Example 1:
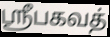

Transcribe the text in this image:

ஸ்ரீபகவத்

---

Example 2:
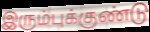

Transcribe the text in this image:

இரும்புக்குண்டு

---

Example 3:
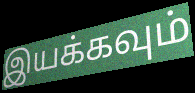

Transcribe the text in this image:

இயக்கவும்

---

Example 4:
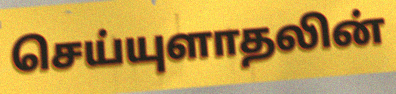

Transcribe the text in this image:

செய்யுளாதலின்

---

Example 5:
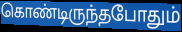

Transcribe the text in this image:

கொண்டிருந்தபோதும்